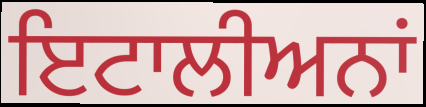
ਇਟਾਲੀਅਨਾਂ